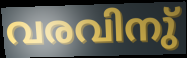
വരവിനു്